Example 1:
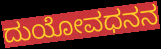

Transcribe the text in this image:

ದುಯೋವಧನನ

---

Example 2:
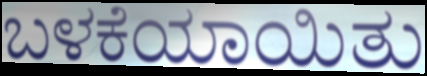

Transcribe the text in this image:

ಬಳಕೆಯಾಯಿತು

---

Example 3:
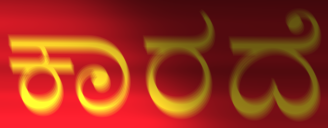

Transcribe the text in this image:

ಕಾರದೆ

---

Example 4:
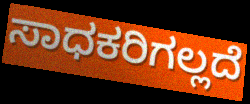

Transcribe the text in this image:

ಸಾಧಕರಿಗಲ್ಲದೆ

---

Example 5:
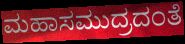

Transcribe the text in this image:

ಮಹಾಸಮುದ್ರದಂತೆ